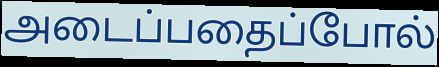
அடைப்பதைப்போல்